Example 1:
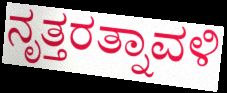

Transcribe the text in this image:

ನೃತ್ತರತ್ನಾವಳಿ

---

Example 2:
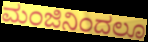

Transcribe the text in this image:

ಮಂಜಿನಿಂದಲೂ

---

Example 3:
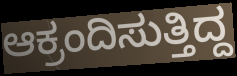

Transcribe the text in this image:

ಆಕ್ರಂದಿಸುತ್ತಿದ್ದ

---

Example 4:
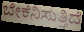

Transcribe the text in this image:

ಬೇಕೆನಿಸುತ್ತಿದೆ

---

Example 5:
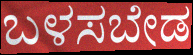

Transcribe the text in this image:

ಬಳಸಬೇಡ